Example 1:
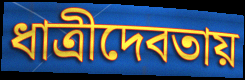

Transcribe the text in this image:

ধাত্রীদেবতায়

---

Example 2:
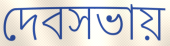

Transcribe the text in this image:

দেবসভায়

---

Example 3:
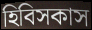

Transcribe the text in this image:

হিবিসকাস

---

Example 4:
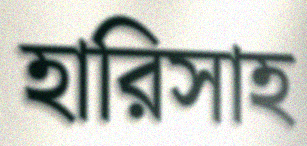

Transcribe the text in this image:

হারিসাহ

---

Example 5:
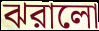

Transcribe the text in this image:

ঝরালো